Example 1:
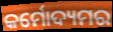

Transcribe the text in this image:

କର୍ମୋଦ୍ୟମର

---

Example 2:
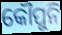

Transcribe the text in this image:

କୌପୁନି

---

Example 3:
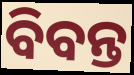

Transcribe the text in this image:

ବିବନ୍ତ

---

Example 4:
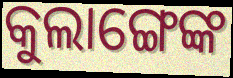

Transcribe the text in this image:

କୁଲାଙ୍ଗେଙ୍କ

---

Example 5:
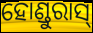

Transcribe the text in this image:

ହୋଣ୍ଡୁରାସ୍